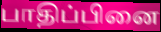
பாதிப்பினை